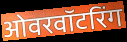
ओवरवॉटरिंग